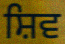
ਸ਼ਿਵ